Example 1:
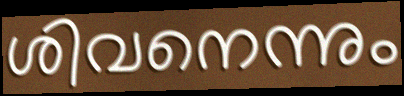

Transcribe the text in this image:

ശിവനെന്നും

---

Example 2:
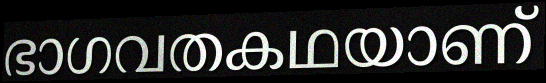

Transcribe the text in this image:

ഭാഗവതകഥയാണ്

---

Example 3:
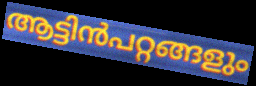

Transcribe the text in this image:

ആട്ടിൻപറ്റങ്ങളും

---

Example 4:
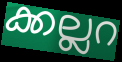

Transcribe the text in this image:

ക്കല്ലറ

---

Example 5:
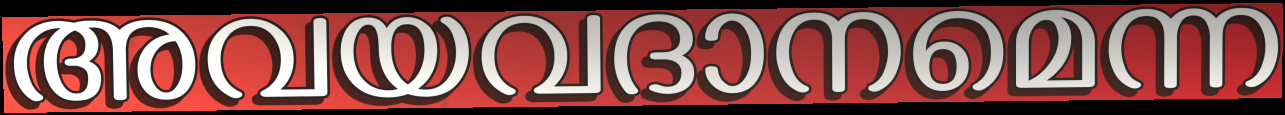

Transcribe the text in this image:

അവയവദാനമെന്ന